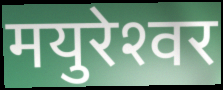
मयुरेश्वर